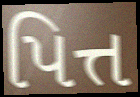
પિત્ત